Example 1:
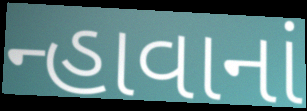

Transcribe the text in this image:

ન્હાવાનાં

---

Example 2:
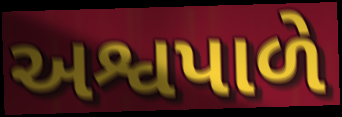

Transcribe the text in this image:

અશ્વપાળે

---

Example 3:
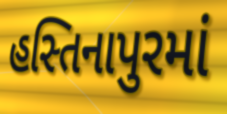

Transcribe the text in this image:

હસ્તિનાપુરમાં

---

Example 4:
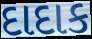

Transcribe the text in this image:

દાદાક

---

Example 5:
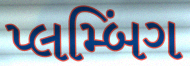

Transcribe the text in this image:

પ્લમ્બિંગ